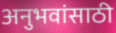
अनुभवांसाठी